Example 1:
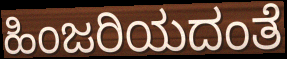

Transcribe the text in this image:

ಹಿಂಜರಿಯದಂತೆ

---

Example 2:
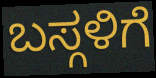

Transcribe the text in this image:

ಬಸ್ಗಳಿಗೆ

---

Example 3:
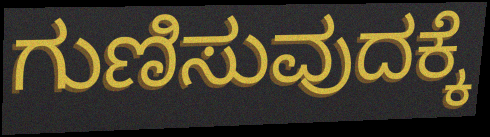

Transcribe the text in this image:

ಗುಣಿಸುವುದಕ್ಕೆ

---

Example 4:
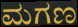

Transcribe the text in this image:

ಮಗಣ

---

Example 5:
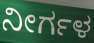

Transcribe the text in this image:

ನೀರ್ಗಳ